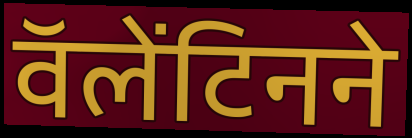
वॅलेंटिनने